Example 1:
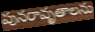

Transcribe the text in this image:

పునరావృతాలను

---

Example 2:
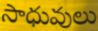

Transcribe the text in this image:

సాధువులు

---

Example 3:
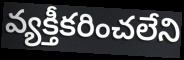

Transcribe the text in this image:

వ్యక్తీకరించలేని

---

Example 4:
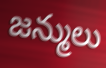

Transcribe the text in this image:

జన్ములు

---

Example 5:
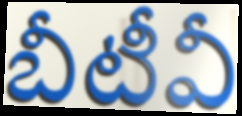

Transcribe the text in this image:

బీటీవీ